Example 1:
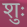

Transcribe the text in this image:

शुः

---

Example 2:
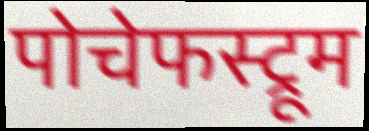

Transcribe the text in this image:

पोचेफस्ट्रूम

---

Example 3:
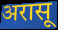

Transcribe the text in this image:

अरासू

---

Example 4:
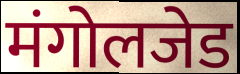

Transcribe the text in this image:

मंगोलजेड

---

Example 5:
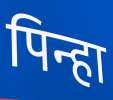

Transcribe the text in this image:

पिन्हा